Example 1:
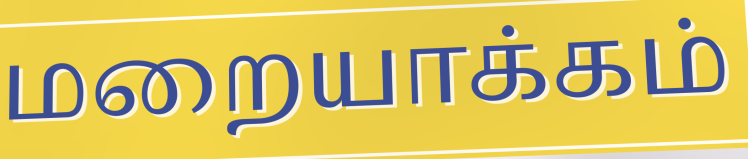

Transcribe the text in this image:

மறையாக்கம்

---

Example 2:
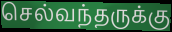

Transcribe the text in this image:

செல்வந்தருக்கு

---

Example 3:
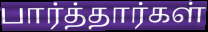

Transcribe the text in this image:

பார்த்தார்கள்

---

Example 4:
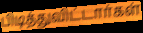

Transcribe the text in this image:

பிடித்துவிட்டார்கள்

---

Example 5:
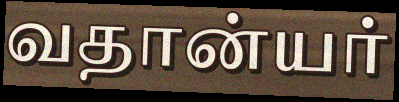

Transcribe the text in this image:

வதான்யர்